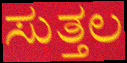
ಸುತ್ತಲ